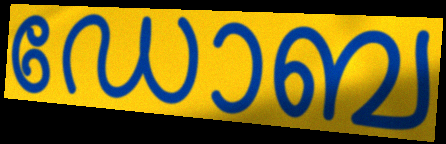
ഡോബ